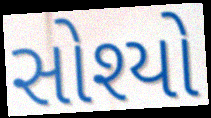
સોશ્યો